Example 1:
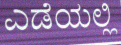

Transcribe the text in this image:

ಎಡೆಯಲ್ಲಿ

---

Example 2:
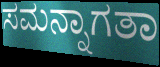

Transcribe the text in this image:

ಸಮನ್ನಾಗತಾ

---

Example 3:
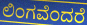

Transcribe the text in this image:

ಲಿಂಗವೆಂದರೆ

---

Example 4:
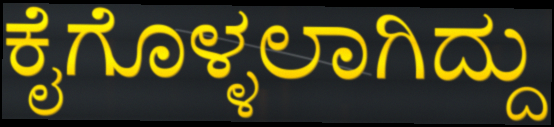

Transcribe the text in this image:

ಕೈಗೊಳ್ಳಲಾಗಿದ್ದು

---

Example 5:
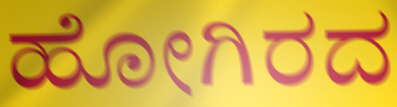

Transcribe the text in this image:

ಹೋಗಿರದ